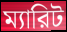
ম্যারিট